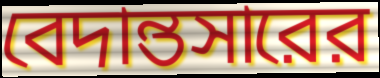
বেদান্তসারের